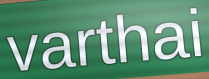
varthai